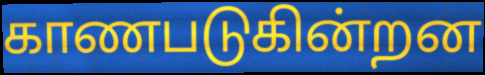
காணபடுகின்றன